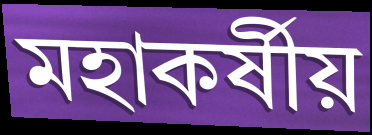
মহাকর্ষীয়